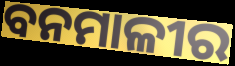
ବନମାଳୀର